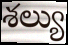
శల్యు